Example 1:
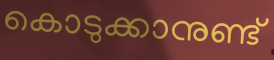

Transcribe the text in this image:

കൊടുക്കാനുണ്ട്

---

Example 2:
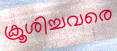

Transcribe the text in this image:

ക്രൂശിച്ചവരെ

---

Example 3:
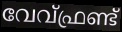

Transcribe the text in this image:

വേവ്ഫ്രണ്ട്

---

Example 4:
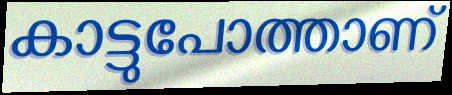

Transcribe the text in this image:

കാട്ടുപോത്താണ്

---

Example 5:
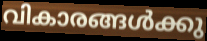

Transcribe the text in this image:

വികാരങ്ങൾക്കു